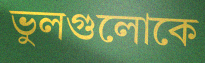
ভুলগুলোকে